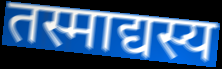
तस्माद्यस्य